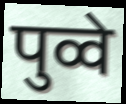
पुव्वे